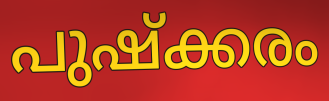
പുഷ്ക്കരം